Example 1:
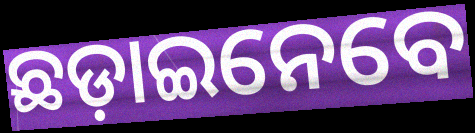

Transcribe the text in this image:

ଛଡ଼ାଇନେବେ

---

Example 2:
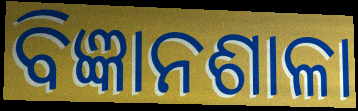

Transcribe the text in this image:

ବିଜ୍ଞାନଶାଳା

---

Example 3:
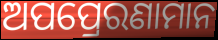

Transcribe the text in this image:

ଅପପ୍ରେରଣାମାନ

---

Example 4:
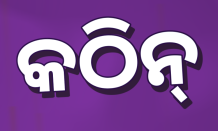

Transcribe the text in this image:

କଠିନ୍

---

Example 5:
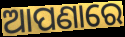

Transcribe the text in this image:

ଆପଣାରେ